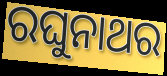
ରଘୁନାଥର